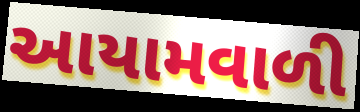
આયામવાળી